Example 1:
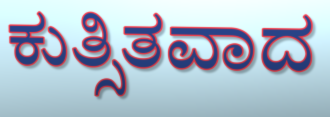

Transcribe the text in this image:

ಕುತ್ಸಿತವಾದ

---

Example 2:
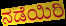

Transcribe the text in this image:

ನಡೆಯಿರಿ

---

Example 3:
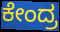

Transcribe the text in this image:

ಕೇಂದ್ರ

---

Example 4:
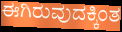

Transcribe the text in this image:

ಈಗಿರುವುದಕ್ಕಿಂತ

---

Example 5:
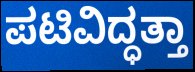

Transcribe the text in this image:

ಪಟಿವಿದ್ಧತ್ತಾ